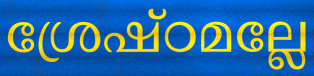
ശ്രേഷ്ഠമല്ലേ